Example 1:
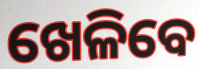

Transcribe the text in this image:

ଖେଳିବେ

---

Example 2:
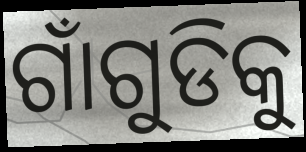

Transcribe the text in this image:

ଗାଁଗୁଡିକୁ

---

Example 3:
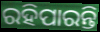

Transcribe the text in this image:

ରହିପାରନ୍ତି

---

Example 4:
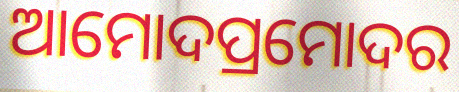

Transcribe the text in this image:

ଆମୋଦପ୍ରମୋଦର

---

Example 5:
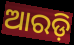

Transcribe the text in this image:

ଆରଡ଼ି